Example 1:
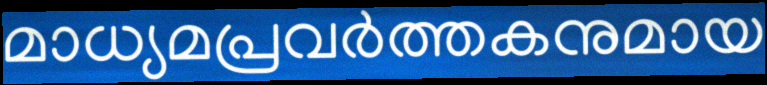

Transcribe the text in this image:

മാധ്യമപ്രവർത്തകനുമായ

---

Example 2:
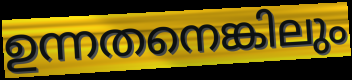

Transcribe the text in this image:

ഉന്നതനെങ്കിലും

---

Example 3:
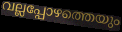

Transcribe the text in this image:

വല്ലപ്പോഴത്തെയും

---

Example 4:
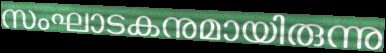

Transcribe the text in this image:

സംഘാടകനുമായിരുന്നു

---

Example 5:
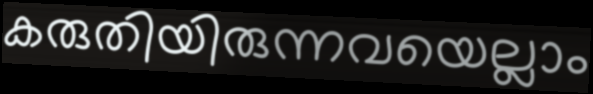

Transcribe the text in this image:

കരുതിയിരുന്നവയെല്ലാം